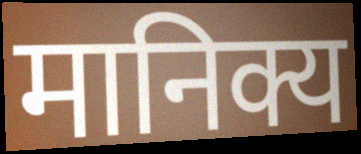
मानिक्य